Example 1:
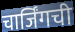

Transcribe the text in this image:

चार्जिंगची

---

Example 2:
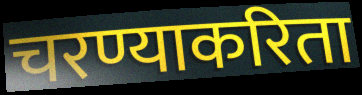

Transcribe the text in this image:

चरण्याकरिता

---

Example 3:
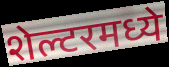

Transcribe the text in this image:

शेल्टरमध्ये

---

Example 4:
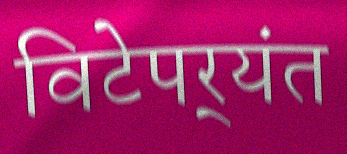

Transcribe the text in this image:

विटेपर्यंत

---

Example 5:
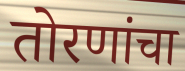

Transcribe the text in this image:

तोरणांचा